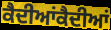
ਕੈਦੀਆਂਕੈਦੀਆਂ